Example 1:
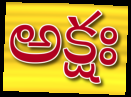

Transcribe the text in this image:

అక్షః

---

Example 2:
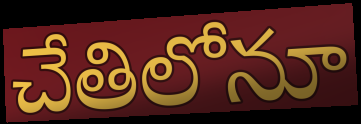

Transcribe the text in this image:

చేతిలోనూ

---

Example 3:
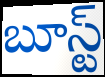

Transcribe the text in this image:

బూస్ట్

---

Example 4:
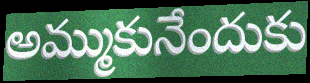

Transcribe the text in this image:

అమ్ముకునేందుకు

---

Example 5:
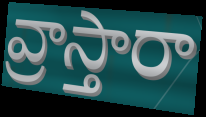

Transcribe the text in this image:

వ్రాస్తారా